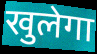
खुलेगा